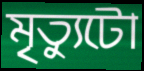
মৃত্যুটো